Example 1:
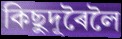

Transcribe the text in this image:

কিছুদূৰৈলৈ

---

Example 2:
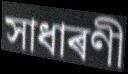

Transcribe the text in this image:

সাধাৰণী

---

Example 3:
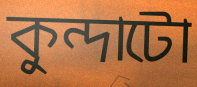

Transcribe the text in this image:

কুন্দাটো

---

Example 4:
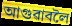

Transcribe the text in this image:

আগুৱাবলৈ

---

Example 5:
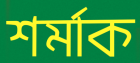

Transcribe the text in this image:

শৰ্মাক